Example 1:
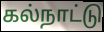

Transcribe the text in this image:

கல்நாட்டு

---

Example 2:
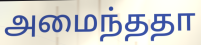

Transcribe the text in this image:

அமைந்ததா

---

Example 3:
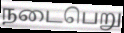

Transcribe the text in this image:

நடைபெறு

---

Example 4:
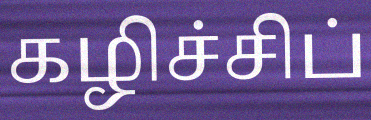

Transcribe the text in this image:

கழிச்சிப்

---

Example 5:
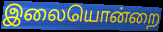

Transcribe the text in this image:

இலையொன்றை